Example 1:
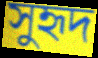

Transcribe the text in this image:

সুহৃদ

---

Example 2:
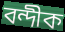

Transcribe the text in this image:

বন্দীক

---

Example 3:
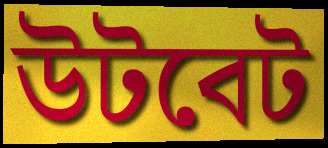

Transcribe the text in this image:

উটবেট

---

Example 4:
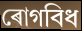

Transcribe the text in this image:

ৰোগবিধ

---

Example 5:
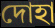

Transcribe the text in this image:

দোহা